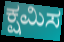
ಕ್ಷಮಿಸ